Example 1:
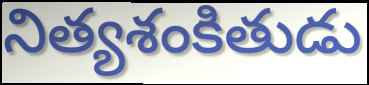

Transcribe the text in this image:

నిత్యశంకితుడు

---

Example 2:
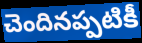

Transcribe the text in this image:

చెందినప్పటికీ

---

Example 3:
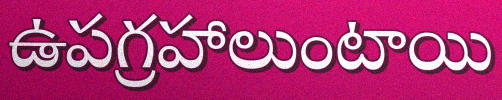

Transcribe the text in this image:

ఉపగ్రహాలుంటాయి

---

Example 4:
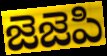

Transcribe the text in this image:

జెజెపి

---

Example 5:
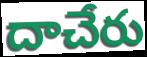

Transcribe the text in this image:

దాచేరు